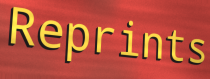
Reprints